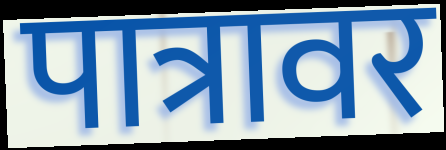
पात्रावर